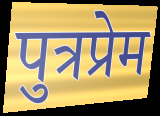
पुत्रप्रेम